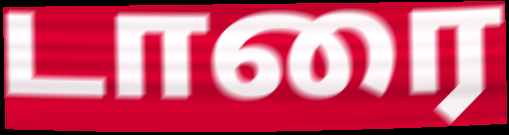
டாரை